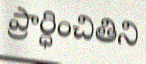
ప్రార్ధించితిని